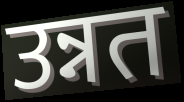
उन्नत